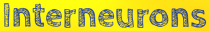
Interneurons